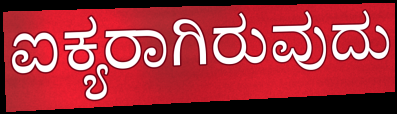
ಐಕ್ಯರಾಗಿರುವುದು